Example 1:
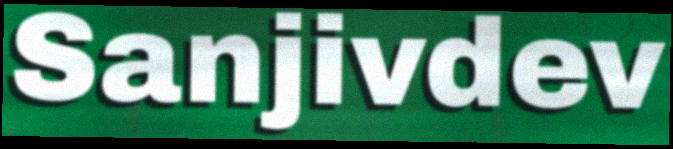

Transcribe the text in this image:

Sanjivdev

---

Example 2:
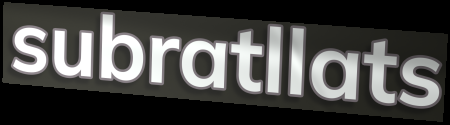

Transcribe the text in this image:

subratllats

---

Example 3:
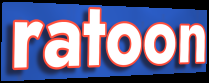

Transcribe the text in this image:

ratoon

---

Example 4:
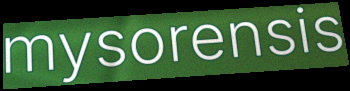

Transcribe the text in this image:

mysorensis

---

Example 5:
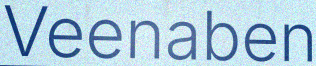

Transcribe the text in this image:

Veenaben